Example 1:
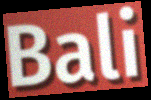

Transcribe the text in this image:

Bali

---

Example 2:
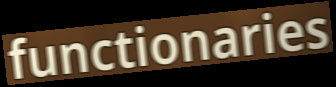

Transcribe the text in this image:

functionaries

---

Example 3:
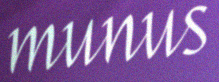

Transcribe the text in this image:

munus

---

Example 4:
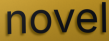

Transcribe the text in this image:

novel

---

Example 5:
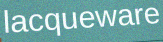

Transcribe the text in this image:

lacqueware